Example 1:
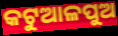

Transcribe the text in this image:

କଟୁଆଳପୁଅ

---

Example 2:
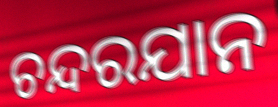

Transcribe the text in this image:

ଚନ୍ଦରଯାନ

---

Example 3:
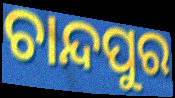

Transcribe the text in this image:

ଚାନ୍ଦପୁର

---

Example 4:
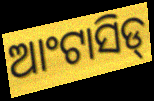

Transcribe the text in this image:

ଆଂଟାସିଡ୍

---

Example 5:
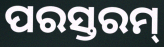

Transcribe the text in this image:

ପରସ୍ତରମ୍